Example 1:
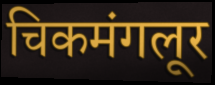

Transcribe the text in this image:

चिकमंगलूर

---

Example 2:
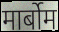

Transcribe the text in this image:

मार्बोम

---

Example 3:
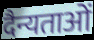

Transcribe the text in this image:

दैन्यताओं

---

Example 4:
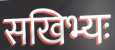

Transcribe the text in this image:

सखिभ्यः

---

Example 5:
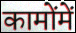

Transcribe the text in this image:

कामोंमें